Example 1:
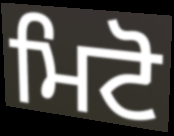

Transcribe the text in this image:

ਮਿਟੋ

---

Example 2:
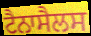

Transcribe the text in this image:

ਟੈਨਾਸੈਲਸ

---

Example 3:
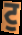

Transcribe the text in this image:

ਟੁ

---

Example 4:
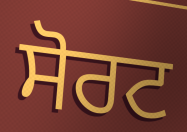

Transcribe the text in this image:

ਸੋਰਟ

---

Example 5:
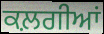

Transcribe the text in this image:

ਕਲ਼ਗੀਆਂ